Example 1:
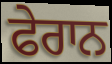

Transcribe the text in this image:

ਫੇਰਾਨ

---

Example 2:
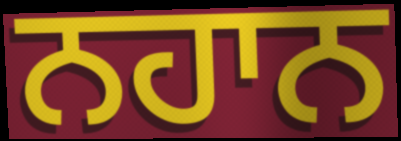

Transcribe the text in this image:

ਨਹਾਨ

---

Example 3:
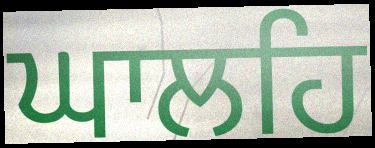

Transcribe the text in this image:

ਘਾਲਹਿ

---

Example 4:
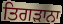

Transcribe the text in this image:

ਤਿਗੜਾਨਾ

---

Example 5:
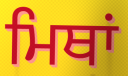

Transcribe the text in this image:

ਮਿਥਾਂ